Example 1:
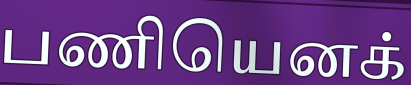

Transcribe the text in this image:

பணியெனக்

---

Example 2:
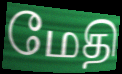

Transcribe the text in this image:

மேதி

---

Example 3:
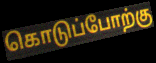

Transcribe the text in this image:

கொடுப்போற்கு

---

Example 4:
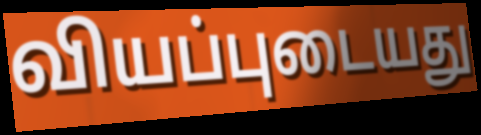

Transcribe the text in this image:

வியப்புடையது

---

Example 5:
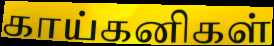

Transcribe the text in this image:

காய்கனிகள்